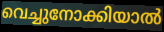
വെച്ചുനോക്കിയാൽ